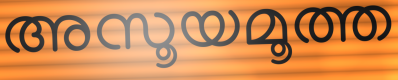
അസൂയമൂത്ത